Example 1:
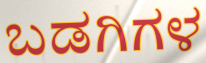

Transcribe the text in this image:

ಬಡಗಿಗಳ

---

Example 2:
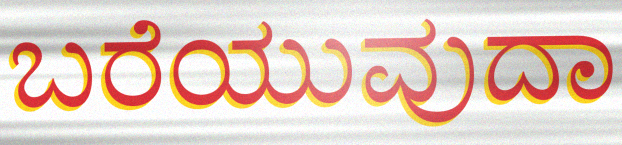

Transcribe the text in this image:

ಬರೆಯುವುದಾ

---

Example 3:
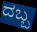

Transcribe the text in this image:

ದಬ್ಬ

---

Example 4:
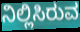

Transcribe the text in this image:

ನಿಲ್ಲಿಸಿರುವ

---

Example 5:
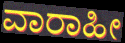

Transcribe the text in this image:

ವಾರಾಹೀ